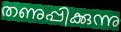
തണുപ്പിക്കുന്നു